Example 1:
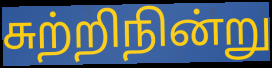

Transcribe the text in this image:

சுற்றிநின்று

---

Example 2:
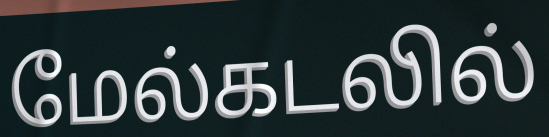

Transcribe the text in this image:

மேல்கடலில்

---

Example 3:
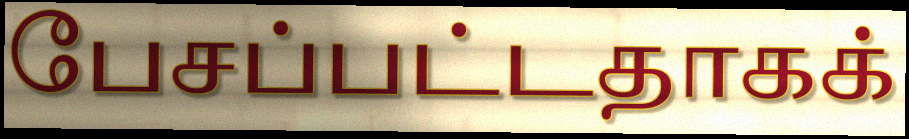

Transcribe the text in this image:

பேசப்பட்டதாகக்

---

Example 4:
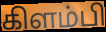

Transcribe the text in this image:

கிளம்பி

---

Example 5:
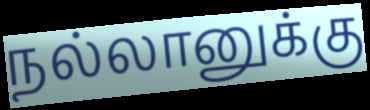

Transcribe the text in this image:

நல்லானுக்கு